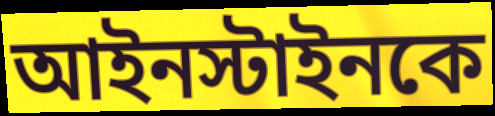
আইনস্টাইনকে